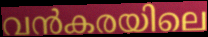
വൻകരയിലെ